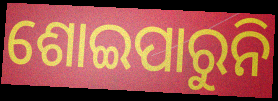
ଶୋଇପାରୁନି